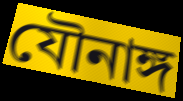
যৌনাঙ্গ